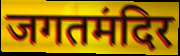
जगतमंदिर